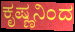
ಕೃಷ್ಣನಿಂದ